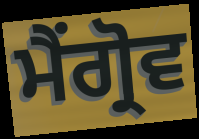
ਮੈਂਗ੍ਰੋਵ